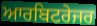
ਆਰਬਿਟਰੇਜਰ